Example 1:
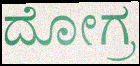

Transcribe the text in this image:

ದೋಗ್ರ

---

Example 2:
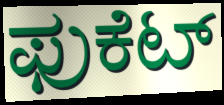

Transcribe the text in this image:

ಫುಕೆಟ್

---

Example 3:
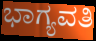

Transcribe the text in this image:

ಭಾಗ್ಯವತಿ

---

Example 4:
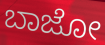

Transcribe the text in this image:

ಬಾಜೋ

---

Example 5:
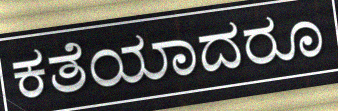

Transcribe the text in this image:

ಕತೆಯಾದರೂ